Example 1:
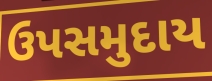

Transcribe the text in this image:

ઉપસમુદાય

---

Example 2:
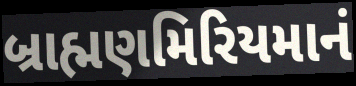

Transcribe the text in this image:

બ્રાહ્મણમિરિયમાનં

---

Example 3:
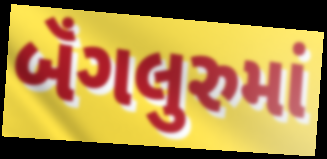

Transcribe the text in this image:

બૅંગલુરુમાં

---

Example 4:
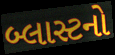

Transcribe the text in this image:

બ્લાસ્ટનો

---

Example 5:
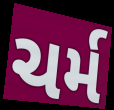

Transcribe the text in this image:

ચર્મ